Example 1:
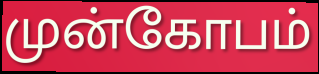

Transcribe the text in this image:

முன்கோபம்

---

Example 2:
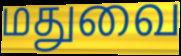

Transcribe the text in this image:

மதுவை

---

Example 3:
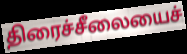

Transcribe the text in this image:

திரைச்சீலையைச்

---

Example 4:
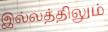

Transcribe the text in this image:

இல்லத்திலும்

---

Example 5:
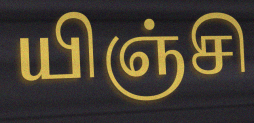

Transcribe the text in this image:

யிஞ்சி